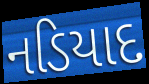
નડિયાદ